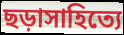
ছড়াসাহিত্যে